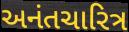
અનંતચારિત્ર